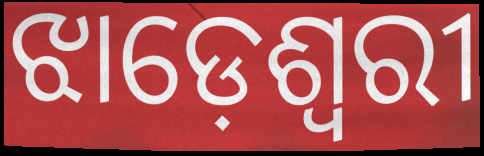
ଝାଡ଼େଶ୍ୱରୀ